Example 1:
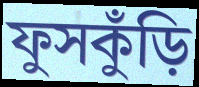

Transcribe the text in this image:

ফুসকুঁড়ি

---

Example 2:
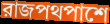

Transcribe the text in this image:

রাজপথপাশে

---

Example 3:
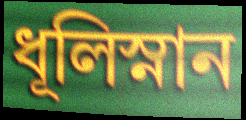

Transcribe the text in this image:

ধূলিস্নান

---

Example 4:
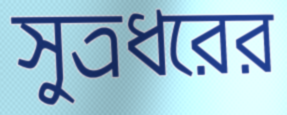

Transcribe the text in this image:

সুত্রধরের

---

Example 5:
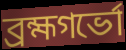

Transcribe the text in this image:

ব্রহ্মগর্ভো